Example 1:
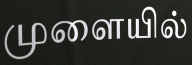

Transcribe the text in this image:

முளையில்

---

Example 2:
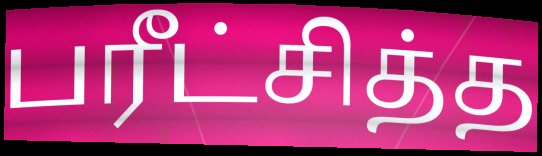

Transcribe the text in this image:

பரீட்சித்த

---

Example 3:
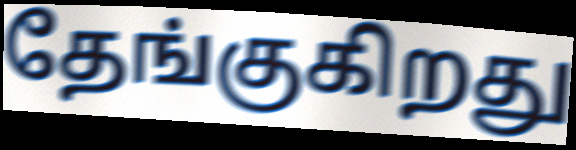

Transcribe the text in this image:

தேங்குகிறது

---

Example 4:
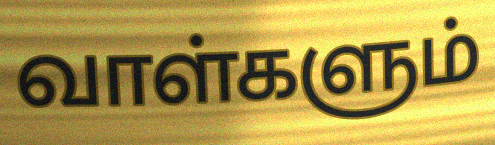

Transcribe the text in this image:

வாள்களும்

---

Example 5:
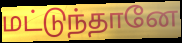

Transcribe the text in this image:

மட்டுந்தானே